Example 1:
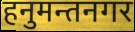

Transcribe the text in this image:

हनुमन्तनगर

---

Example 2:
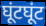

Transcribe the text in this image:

घूंटघूंट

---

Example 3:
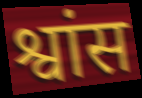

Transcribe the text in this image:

श्वांस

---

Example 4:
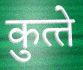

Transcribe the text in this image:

कुत्‍ते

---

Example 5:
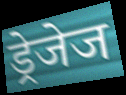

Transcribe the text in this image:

ड्रेजेज